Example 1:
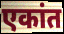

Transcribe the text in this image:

एकांत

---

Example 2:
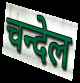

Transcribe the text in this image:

चन्देल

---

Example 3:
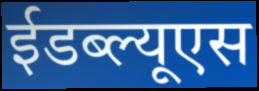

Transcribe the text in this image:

ईडब्ल्यूएस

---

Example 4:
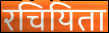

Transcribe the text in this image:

रचियिता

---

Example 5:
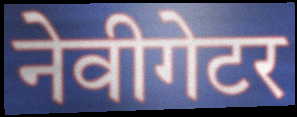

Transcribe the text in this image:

नेवीगेटर